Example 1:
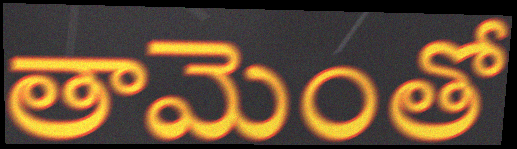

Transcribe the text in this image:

తామెంతో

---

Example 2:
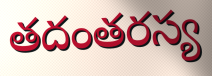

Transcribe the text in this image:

తదంతరస్య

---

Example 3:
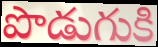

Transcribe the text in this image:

పొడుగుకి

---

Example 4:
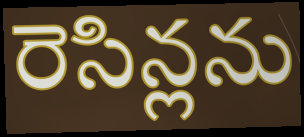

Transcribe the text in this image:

రెసిన్లను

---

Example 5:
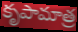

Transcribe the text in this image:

కృపామాత్ర